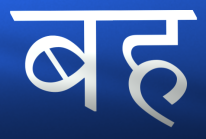
बह